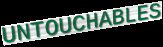
UNTOUCHABLES